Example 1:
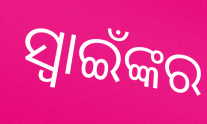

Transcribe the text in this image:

ସ୍ଵାଇଁଙ୍କର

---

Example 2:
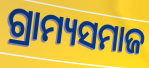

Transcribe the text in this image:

ଗ୍ରାମ୍ୟସମାଜ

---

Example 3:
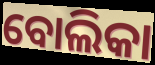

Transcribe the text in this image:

ବୋଲିକା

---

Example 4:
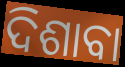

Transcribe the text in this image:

ଦିଶାବା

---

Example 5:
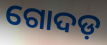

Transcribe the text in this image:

ଗୋଦଡ଼